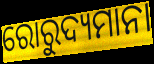
ରୋରୁଦ୍ୟମାନା